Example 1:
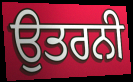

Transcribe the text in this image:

ਉਤਰਨੀ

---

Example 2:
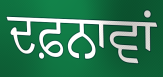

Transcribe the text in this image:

ਦਫ਼ਨਾਵਾਂ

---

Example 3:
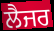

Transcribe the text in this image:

ਲੈਜਰ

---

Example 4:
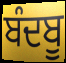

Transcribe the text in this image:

ਬੰਦਬੂ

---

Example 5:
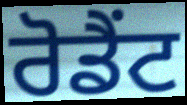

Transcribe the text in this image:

ਰੋਡੈਂਟ